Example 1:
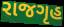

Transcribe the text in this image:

રાજગૃહ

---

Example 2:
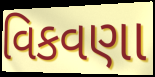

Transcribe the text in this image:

વિકવણા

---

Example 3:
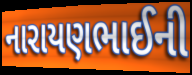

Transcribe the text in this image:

નારાયણભાઈની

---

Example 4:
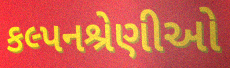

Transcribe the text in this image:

કલ્પનશ્રેણીઓ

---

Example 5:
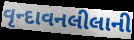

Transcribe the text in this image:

વૃન્દાવનલીલાની